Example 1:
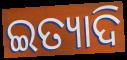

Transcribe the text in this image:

ଇତ୍ଯାଦି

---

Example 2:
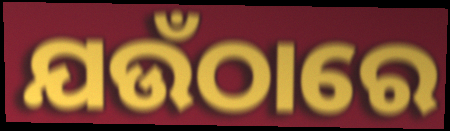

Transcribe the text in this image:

ଯଉଁଠାରେ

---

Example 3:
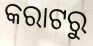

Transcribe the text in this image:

କରାଟରୁ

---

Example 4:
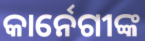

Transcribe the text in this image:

କାର୍ନେଗୀଙ୍କ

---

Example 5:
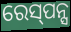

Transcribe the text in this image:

ରେସ୍‌ପନ୍ସ